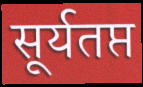
सूर्यतप्त